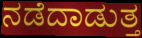
ನಡೆದಾಡುತ್ತ